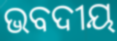
ଭବଦୀୟ